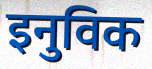
इनुविक